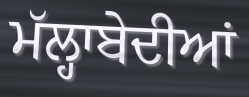
ਮੱਲ੍ਹਾਬੇਦੀਆਂ